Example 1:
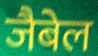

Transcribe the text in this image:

जैबेल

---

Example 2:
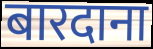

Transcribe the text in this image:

बारदाना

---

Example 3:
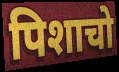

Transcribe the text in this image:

पिशाचो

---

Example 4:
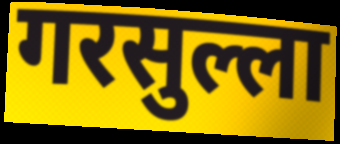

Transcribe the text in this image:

गरसुल्ला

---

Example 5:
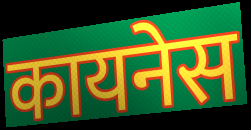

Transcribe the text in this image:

कायनेस